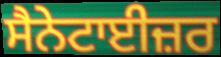
ਸੈਨੇਟਾਈਜ਼ਰ